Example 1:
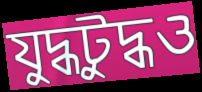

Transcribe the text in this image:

যুদ্ধটুদ্ধও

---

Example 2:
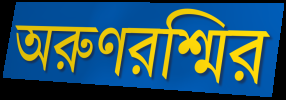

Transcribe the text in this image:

অরুণরশ্মির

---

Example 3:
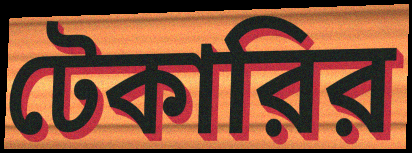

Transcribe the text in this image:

টেকারির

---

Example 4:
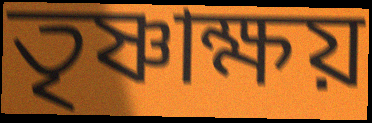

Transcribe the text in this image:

তৃষ্ণাক্ষয়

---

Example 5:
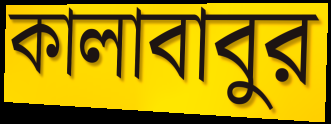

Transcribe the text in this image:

কালাবাবুর